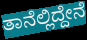
ತಾನೆಲ್ಲಿದ್ದೇನೆ